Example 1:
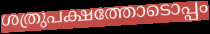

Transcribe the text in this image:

ശത്രുപക്ഷത്തോടൊപ്പം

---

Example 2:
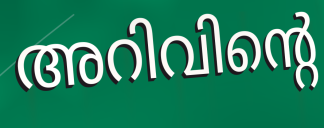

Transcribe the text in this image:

അറിവിന്റെ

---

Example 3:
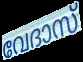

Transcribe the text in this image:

വേദാസ്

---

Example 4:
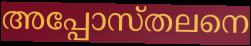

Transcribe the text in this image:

അപ്പോസ്തലനെ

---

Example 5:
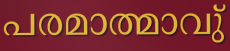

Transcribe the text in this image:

പരമാത്മാവു്